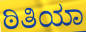
ಠಿತಿಯಾ